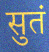
सुतं